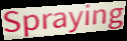
Spraying